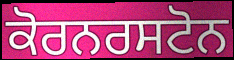
ਕੋਰਨਰਸਟੋਨ